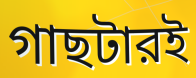
গাছটারই